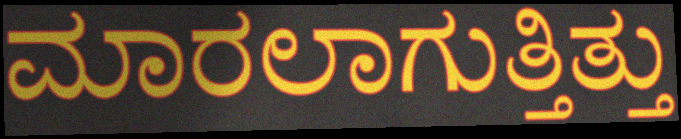
ಮಾರಲಾಗುತ್ತಿತ್ತು